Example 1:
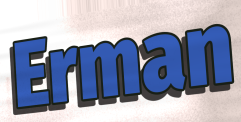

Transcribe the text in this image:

Erman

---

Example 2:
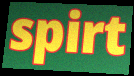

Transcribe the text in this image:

spirt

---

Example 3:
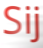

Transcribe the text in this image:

Sij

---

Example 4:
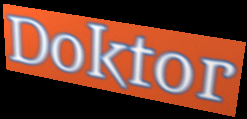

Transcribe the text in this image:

Doktor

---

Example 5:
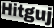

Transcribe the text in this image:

Hitguj